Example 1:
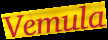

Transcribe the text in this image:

Vemula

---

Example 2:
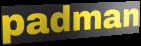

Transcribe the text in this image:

padman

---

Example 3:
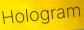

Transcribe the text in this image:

Hologram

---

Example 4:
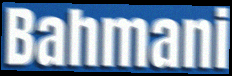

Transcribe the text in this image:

Bahmani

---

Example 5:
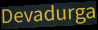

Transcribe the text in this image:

Devadurga